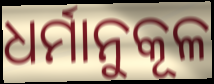
ଧର୍ମାନୁକୂଳ